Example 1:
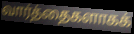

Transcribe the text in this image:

வார்த்தைகளாகக்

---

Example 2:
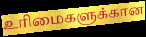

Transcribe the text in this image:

உரிமைகளுக்கான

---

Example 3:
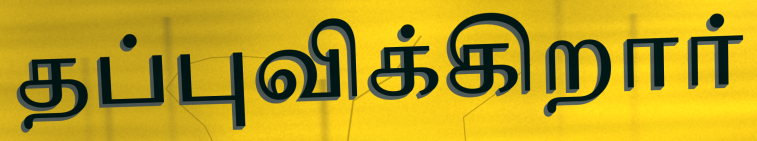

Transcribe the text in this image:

தப்புவிக்கிறார்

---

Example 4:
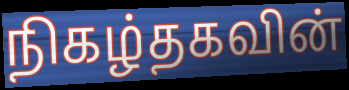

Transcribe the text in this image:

நிகழ்தகவின்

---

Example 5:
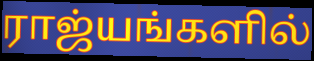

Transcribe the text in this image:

ராஜ்யங்களில்